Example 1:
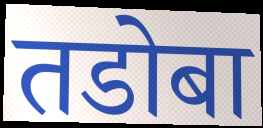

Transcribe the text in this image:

तडोबा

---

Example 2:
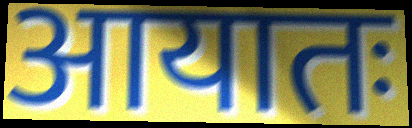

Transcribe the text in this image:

आयातः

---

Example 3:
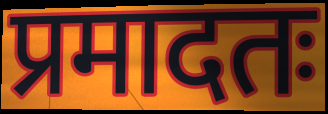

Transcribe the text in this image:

प्रमादतः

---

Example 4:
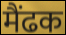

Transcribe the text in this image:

मैंढक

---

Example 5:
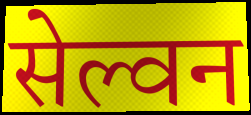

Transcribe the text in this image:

सेल्वन